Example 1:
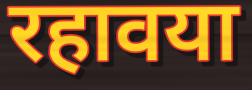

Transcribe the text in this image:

रहावया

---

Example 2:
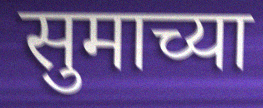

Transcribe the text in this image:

सुमाच्या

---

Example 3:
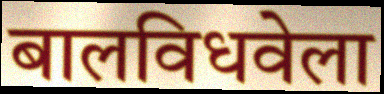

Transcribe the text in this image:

बालविधवेला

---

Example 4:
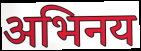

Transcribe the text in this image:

अभिनय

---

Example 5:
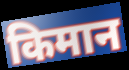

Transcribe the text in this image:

किमान